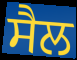
ਸੈਲ